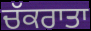
ਚੱਕਰਾਤਾ